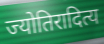
ज्योतिरादित्य